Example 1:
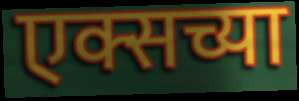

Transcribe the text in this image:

एक्सच्या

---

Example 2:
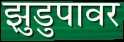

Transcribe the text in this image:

झुडुपावर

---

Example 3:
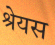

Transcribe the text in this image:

श्रेयस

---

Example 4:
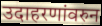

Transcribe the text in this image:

उदाहरणांवरुन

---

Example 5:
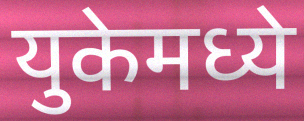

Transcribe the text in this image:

युकेमध्ये